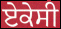
ਏਕੇਸੀ